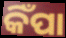
କିଁପା